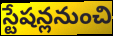
స్టేషన్లనుంచి